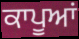
ਕਾਪੂਆਂ